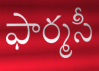
ఫార్మసీ